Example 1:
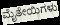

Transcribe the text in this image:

ಮೈತೇಯಿಗಳು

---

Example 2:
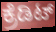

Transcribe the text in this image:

ಕ್ರೆಡಿಟ್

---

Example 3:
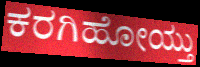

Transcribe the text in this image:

ಕರಗಿಹೋಯ್ತು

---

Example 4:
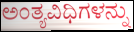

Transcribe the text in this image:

ಅಂತ್ಯವಿಧಿಗಳನ್ನು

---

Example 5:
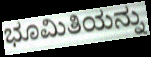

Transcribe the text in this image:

ಭೂಮಿತಿಯನ್ನು